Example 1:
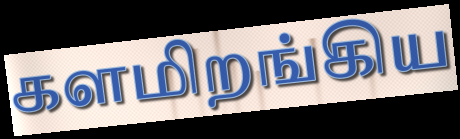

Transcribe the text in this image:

களமிறங்கிய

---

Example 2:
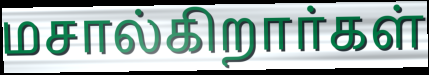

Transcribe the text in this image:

மசால்கிறார்கள்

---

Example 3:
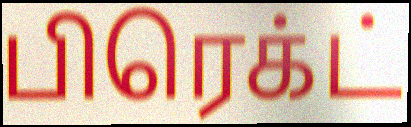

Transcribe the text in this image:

பிரெக்ட்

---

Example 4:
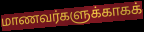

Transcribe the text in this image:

மாணவர்களுக்காகக்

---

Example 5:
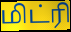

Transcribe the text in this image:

மிட்ரி